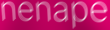
nenape